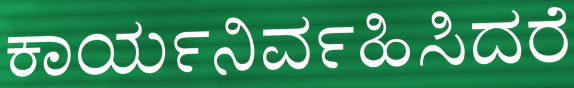
ಕಾರ್ಯನಿರ್ವಹಿಸಿದರೆ